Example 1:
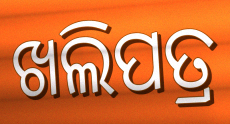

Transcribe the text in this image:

ଖଲିପତ୍ର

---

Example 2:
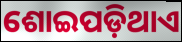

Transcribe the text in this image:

ଶୋଇପଡ଼ିଥାଏ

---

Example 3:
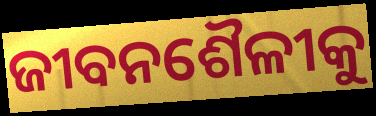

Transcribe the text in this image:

ଜୀବନଶୈଳୀକୁ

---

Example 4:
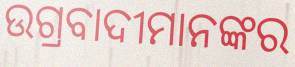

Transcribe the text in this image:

ଉଗ୍ରବାଦୀମାନଙ୍କର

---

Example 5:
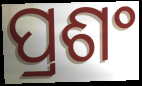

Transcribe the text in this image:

ପ୍ରଶଂ